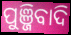
ପୁଞ୍ଜିବାଦି